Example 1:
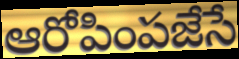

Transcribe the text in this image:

ఆరోపింపజేసే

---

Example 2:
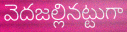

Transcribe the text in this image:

వెదజల్లినట్టుగా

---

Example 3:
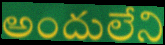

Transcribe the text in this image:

అందులేని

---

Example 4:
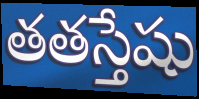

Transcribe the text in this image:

తతస్తేషు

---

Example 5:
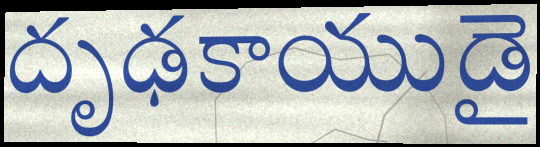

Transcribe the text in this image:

దృఢకాయుడై